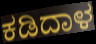
ಕಡಿದಾಳ